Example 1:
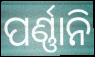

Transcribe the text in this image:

ପର୍ଣ୍ଣାନି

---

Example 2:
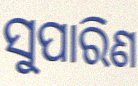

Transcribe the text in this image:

ସୁପାରିଣ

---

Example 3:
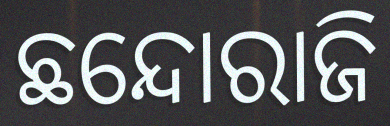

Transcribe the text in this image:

ଛନ୍ଦୋରାଜି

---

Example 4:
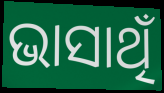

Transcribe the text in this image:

ଭାସାଥିଁ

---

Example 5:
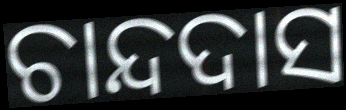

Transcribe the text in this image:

ଚାନ୍ଦଦାସ